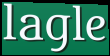
lagle